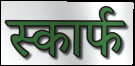
स्कार्फ